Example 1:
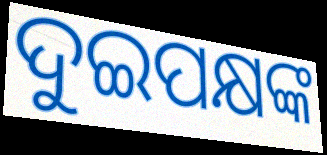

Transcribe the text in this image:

ଦୁଇପକ୍ଷଙ୍କ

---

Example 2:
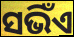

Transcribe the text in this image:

ସଭିଁଏ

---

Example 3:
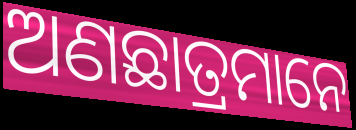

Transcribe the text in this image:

ଅଣଛାତ୍ରମାନେ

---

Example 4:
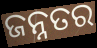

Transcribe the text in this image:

ଜନ୍ନତର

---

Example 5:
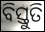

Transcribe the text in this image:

ବିସ୍ତୁତି